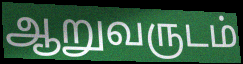
ஆறுவருடம்